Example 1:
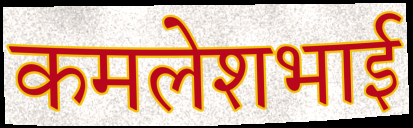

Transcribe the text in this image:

कमलेशभाई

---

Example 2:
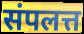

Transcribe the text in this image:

संपलत्त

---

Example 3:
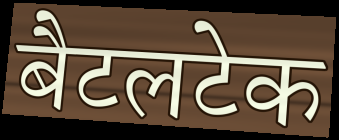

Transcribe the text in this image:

बैटलटेक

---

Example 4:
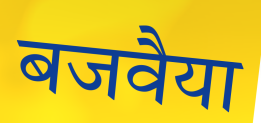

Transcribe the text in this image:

बजवैया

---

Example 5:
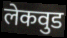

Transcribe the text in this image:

लेकवुड